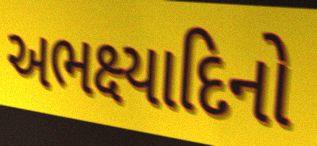
અભક્ષ્યાદિનો